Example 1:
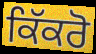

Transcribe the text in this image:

ਕਿੱਕਰੋ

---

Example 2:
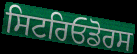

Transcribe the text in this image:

ਸਿਟਰਿਓਡੋਰਸ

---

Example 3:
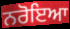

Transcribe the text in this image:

ਨਰੋਇਆ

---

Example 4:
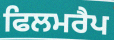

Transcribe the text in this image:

ਫਿਲਮਰੈਪ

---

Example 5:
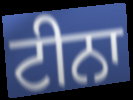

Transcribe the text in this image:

ਟੀਨਾ